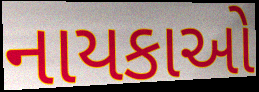
નાયકાઓ